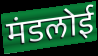
मंडलोई